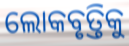
ଲୋକବୃତ୍ତିକୁ